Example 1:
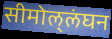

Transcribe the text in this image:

सीमोल्लंघन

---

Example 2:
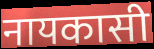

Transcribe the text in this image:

नायकासी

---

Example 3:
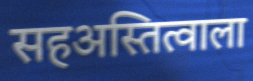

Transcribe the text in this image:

सहअस्तित्वाला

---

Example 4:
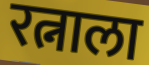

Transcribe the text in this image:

रत्नाला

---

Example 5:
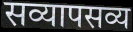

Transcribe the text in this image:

सव्यापसव्य